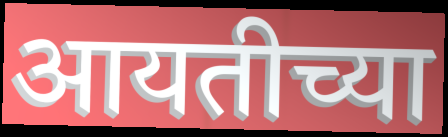
आयतीच्या